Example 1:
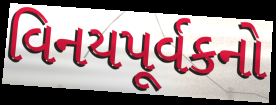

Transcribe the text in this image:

વિનયપૂર્વકનો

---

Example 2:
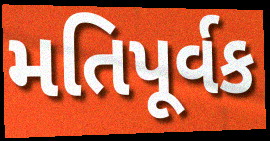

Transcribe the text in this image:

મતિપૂર્વક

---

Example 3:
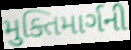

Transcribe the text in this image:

મુક્તિમાર્ગની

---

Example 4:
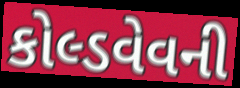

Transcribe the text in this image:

કોલ્ડવેવની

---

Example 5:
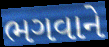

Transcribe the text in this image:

ભગવાને